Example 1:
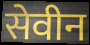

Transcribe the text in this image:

सेवीन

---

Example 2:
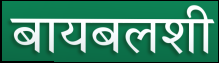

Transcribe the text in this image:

बायबलशी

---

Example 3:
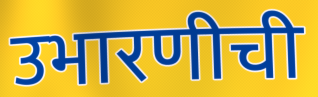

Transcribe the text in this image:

उभारणीची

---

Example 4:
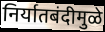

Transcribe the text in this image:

निर्यातबंदीमुळे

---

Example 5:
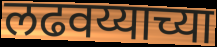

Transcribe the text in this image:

लढवय्याच्या